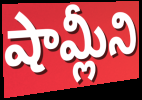
షామ్లీని